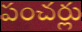
పంచర్లు